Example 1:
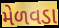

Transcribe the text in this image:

મેળવડા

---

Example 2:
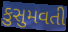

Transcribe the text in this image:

કુસુમવતી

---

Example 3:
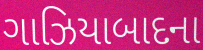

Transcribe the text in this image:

ગાઝિયાબાદના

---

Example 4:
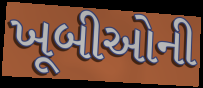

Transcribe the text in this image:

ખૂબીઓની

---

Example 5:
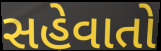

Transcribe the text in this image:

સહેવાતો